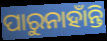
ପାରୁନାହାଁନ୍ତି